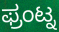
ಫ್ರಂಟ್ನ